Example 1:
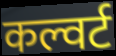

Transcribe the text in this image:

कल्वर्ट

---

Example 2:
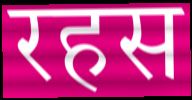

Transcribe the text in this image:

रहस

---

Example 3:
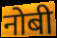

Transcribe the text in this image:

नोबी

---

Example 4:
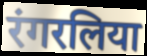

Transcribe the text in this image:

रंगरलिया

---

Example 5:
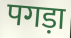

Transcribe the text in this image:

पगड़ा